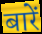
बारें